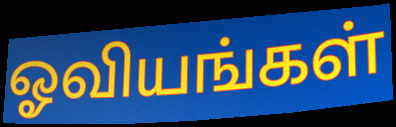
ஓவியங்கள்